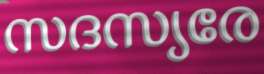
സദസ്യരേ